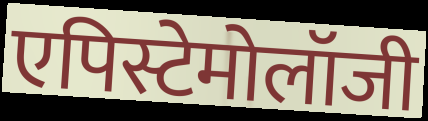
एपिस्टेमोलॉजी